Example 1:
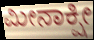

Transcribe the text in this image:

ಮೀನಾಕ್ಷೀ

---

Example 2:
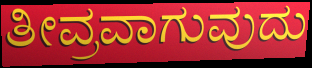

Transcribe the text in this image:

ತೀವ್ರವಾಗುವುದು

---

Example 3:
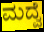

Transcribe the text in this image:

ಮದ್ವೆ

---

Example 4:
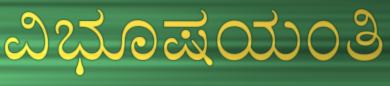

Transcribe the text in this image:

ವಿಭೂಷಯಂತಿ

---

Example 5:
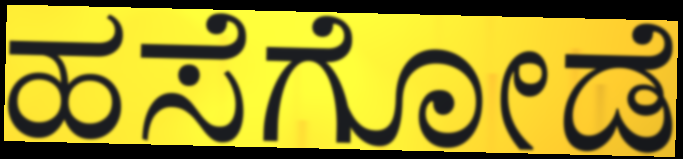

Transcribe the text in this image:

ಹಸೆಗೋಡೆ